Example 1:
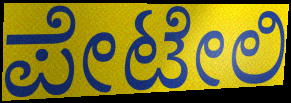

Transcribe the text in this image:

ಪೇಟೇಲಿ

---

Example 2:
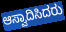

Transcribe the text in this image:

ಆಸ್ವಾದಿಸಿದರು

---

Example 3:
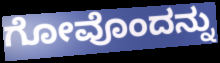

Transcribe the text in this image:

ಗೋವೊಂದನ್ನು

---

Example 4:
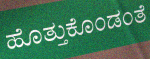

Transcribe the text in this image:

ಹೊತ್ತುಕೊಂಡಂತೆ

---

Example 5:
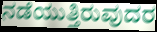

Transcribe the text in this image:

ನಡೆಯುತ್ತಿರುವುದರ